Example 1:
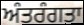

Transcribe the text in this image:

ਅੰਤਰੰਗਤਾ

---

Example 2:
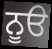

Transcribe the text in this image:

ਨੂੳ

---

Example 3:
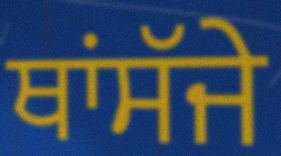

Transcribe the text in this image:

ਥਾਂਸੱਜੇ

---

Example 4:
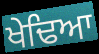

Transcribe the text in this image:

ਖੇਢਿਆ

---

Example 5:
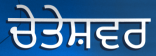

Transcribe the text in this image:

ਚੇਤੇਸ਼ਵਰ